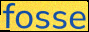
fosse